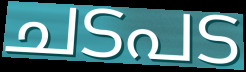
ചടപട